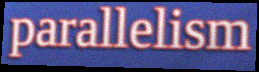
parallelism